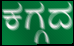
ಕಗ್ಗದ